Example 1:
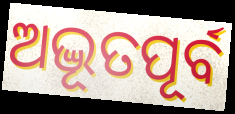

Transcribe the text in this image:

ଅଦ୍ଭୂତପୂର୍ବ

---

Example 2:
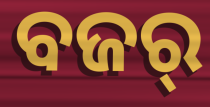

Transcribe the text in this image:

ବଜର୍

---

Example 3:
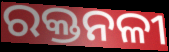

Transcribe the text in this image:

ରକ୍ତନଳୀ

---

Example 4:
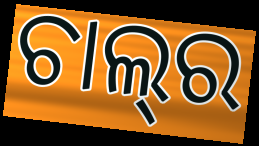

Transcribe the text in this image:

ଚାଲ୍‌ର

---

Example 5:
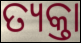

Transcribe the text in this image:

ତ୍ୟକ୍ତା